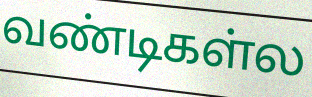
வண்டிகள்ல